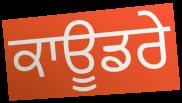
ਕਾਊਡਰੇ